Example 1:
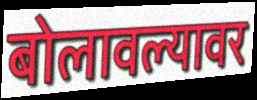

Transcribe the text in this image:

बोलावल्यावर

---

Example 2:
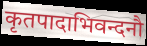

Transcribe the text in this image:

कृतपादाभिवन्दनौ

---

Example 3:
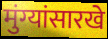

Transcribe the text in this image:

मुंग्यांसारखे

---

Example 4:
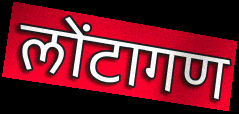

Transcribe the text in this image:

लोंटागण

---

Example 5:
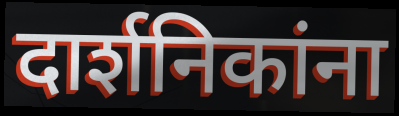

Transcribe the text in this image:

दार्शनिकांना